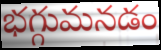
భగ్గుమనడం